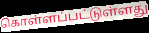
கொள்ளப்பட்டுள்ளது